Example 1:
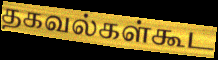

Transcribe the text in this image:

தகவல்கள்கூட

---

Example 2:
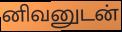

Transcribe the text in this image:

னிவனுடன்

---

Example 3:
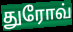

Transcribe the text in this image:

துரோவ்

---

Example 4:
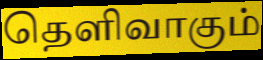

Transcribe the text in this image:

தெளிவாகும்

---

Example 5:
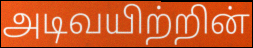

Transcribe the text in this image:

அடிவயிற்றின்